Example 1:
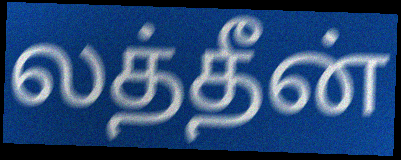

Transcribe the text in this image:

லத்தீன்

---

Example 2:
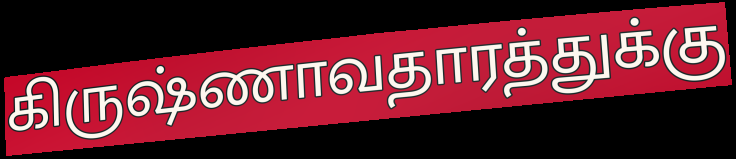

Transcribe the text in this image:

கிருஷ்ணாவதாரத்துக்கு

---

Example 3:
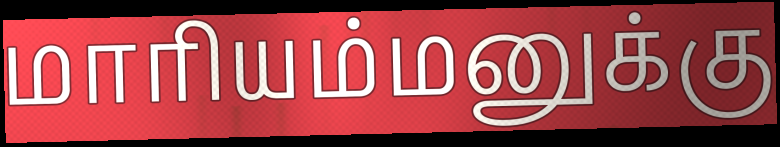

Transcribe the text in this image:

மாரியம்மனுக்கு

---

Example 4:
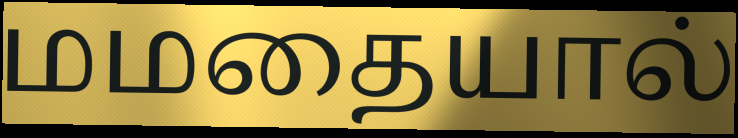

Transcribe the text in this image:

மமதையால்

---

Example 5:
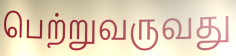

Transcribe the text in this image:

பெற்றுவருவது